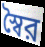
স্বৈর